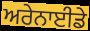
ਅਰੇਨਾਈਡੇ